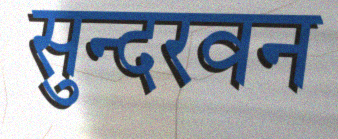
सुन्दरवन